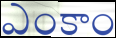
ఎంకాం